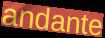
andante